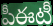
పీఈటీ